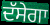
ਦੱਸੇਗਾ